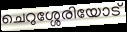
ചെറുശ്ശേരിയോട്